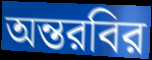
অন্তরবির